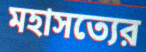
মহাসত্যের